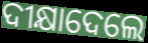
ଦୀକ୍ଷାଦେଲେ